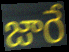
జారే